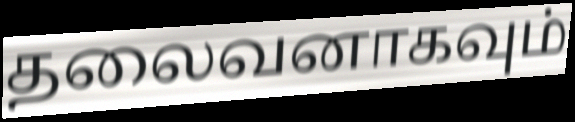
தலைவனாகவும்